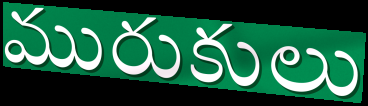
మురుకులు